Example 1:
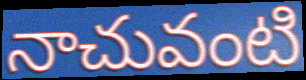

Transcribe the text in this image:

నాచువంటి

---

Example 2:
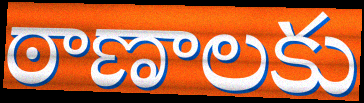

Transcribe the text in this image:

ఠాణాలకు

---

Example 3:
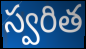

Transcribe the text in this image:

స్వరిత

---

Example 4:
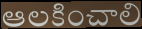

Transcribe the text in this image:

ఆలకించాలి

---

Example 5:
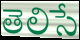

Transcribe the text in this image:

తెలిసే